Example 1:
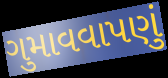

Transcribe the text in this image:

ગુમાવવાપણું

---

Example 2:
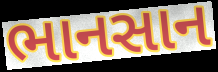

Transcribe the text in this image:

ભાનસાન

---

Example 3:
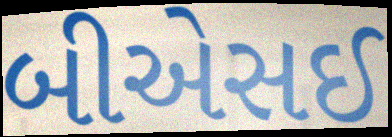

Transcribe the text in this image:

બીએસઈ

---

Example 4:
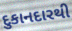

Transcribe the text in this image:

દુકાનદારથી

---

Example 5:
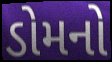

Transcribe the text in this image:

ડોમનો